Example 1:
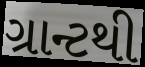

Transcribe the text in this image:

ગ્રાન્ટથી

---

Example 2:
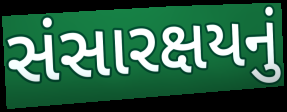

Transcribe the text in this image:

સંસારક્ષયનું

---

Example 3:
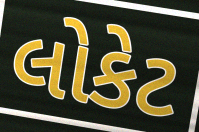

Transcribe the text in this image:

લોકેટ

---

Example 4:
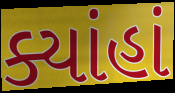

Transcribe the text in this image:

ક્યાંહાં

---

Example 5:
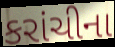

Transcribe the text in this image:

કરાંચીના